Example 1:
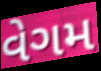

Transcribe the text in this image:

વેગમ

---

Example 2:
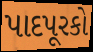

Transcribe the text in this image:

પાદપૂરકો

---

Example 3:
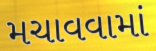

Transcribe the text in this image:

મચાવવામાં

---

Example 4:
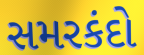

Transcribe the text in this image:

સમરકંદો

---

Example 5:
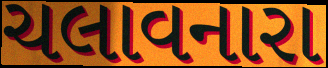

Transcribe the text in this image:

ચલાવનારા